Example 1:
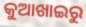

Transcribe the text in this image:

କୁଆଖାଇରୁ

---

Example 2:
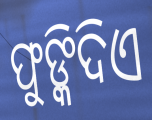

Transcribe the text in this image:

ଫୁଙ୍କିଦିଏ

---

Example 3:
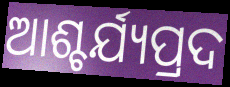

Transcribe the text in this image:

ଆଶ୍ଚର୍ଯ୍ୟପ୍ରଦ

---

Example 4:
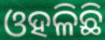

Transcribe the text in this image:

ଓହଳିଛି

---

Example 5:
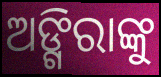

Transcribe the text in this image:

ଅଙ୍ଗିରାଙ୍କୁ